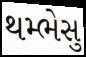
થમ્ભેસુ